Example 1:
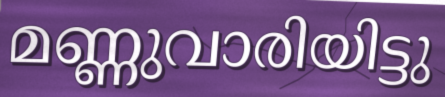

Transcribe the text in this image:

മണ്ണുവാരിയിട്ടു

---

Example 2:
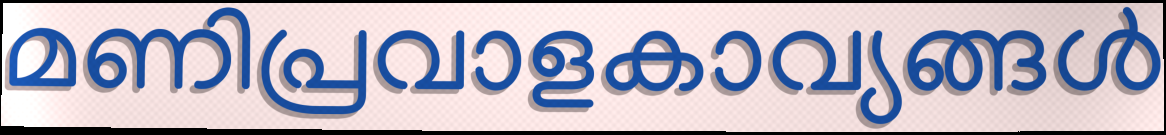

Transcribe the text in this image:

മണിപ്രവാളകാവ്യങ്ങൾ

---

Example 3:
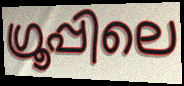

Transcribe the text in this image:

ഗ്രൂപ്പിലെ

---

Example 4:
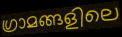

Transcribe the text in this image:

ഗ്രാമങ്ങളിലെ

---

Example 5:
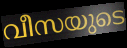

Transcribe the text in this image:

വീസയുടെ